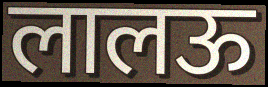
लालऊ